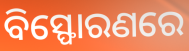
ବିସ୍ଫୋରଣରେ